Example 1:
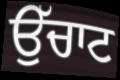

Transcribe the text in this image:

ਉੱਚਾਟ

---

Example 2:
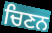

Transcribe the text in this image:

ਚਿਣਨ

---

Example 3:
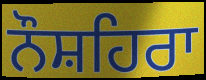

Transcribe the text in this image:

ਨੌਸ਼ਹਿਰਾ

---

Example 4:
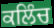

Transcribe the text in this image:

ਕਲਿੰਚ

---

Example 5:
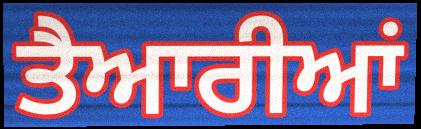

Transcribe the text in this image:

ਤੈਆਰੀਆਂ